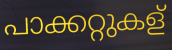
പാക്കറ്റുകള്